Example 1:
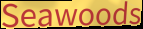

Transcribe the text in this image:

Seawoods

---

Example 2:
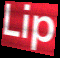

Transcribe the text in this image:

Lip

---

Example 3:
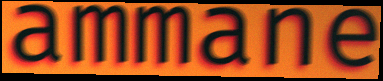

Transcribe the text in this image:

ammane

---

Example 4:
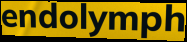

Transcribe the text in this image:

endolymph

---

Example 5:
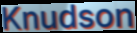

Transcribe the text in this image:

Knudson